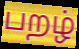
பறழ்